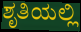
ಶೃತಿಯಲ್ಲಿ